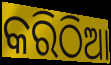
କରିଠିଆ